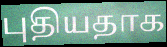
புதியதாக